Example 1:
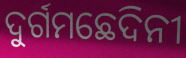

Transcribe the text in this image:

ଦୁର୍ଗମଛେଦିନୀ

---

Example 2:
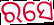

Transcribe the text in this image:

ରସେ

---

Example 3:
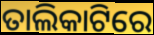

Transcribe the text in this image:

ତାଲିକାଟିରେ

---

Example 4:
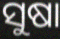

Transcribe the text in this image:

ସୁଷା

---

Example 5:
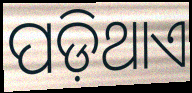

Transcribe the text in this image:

ପଡ଼ିଥାଏ